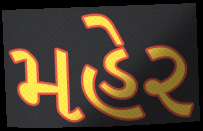
મહેર